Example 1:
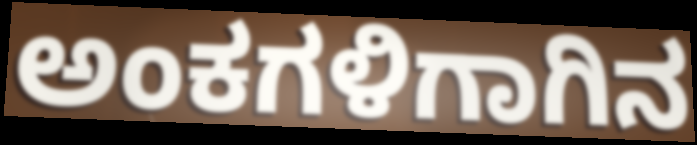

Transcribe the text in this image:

ಅಂಕಗಳಿಗಾಗಿನ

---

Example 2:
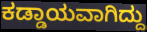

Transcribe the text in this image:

ಕಡ್ಡಾಯವಾಗಿದ್ದು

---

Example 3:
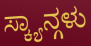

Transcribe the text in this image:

ಸ್ಕ್ಯಾನ್ಗಳು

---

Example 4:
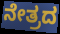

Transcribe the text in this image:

ನೇತ್ರದ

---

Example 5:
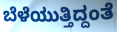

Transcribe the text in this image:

ಬೆಳೆಯುತ್ತಿದ್ದಂತೆ